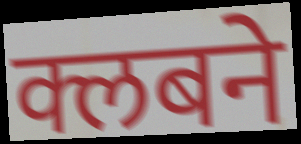
क्‍लबने